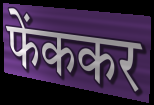
फेंककर